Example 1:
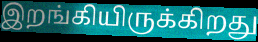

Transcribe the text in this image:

இறங்கியிருக்கிறது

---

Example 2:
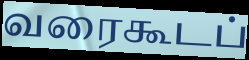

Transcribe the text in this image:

வரைகூடப்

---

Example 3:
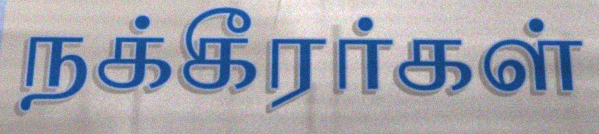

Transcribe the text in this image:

நக்கீரர்கள்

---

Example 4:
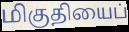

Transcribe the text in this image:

மிகுதியைப்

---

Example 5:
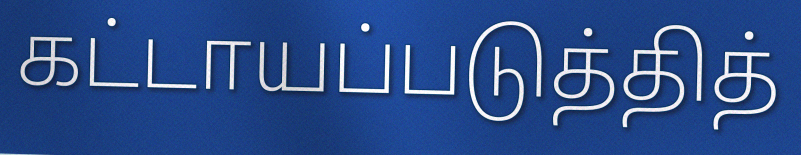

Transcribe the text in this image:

கட்டாயப்படுத்தித்